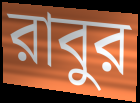
রাবুর